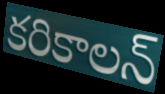
కరికాలన్